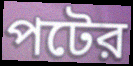
পটের